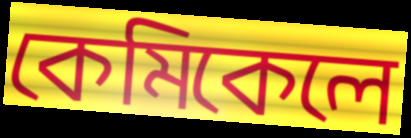
কেমিকেলে